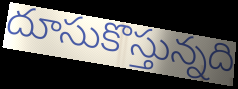
దూసుకొస్తున్నది